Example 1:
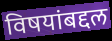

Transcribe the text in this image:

विषयांबद्दल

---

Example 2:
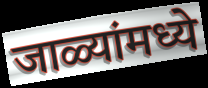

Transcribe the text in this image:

जाळ्यांमध्ये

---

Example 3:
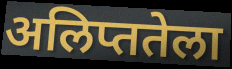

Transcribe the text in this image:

अलिप्ततेला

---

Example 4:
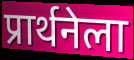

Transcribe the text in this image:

प्रार्थनेला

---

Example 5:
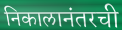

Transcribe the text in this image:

निकालानंतरची